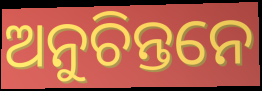
ଅନୁଚିନ୍ତନେ